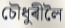
চৌধুৰীলৈ